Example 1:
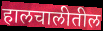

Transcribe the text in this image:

हालचालीतील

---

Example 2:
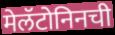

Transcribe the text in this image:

मेलॅटोनिनची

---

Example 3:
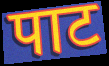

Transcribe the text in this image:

पाट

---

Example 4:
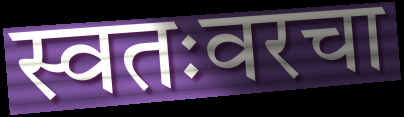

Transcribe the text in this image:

स्वतःवरचा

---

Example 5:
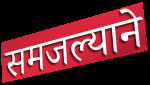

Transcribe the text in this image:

समजल्याने